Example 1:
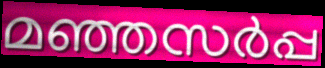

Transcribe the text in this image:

മഞ്ഞസർപ്പ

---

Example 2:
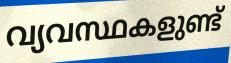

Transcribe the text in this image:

വ്യവസ്ഥകളുണ്ട്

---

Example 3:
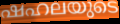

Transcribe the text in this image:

ഷഹലയുടെ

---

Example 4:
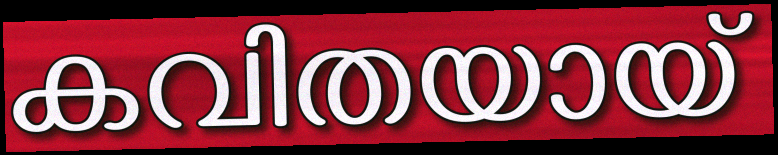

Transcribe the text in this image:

കവിതയായ്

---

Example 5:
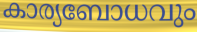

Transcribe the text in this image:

കാര്യബോധവും